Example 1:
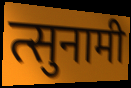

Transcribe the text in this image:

त्सुनामी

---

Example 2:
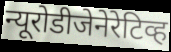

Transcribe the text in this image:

न्यूरोडीजेनेरेटिव्ह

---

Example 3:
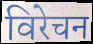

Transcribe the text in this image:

विरेचन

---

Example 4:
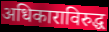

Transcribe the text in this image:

अधिकाराविरुद्ध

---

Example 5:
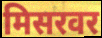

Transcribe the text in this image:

मिसरवर